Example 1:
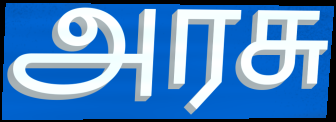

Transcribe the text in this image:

அரசு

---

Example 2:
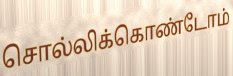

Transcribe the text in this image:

சொல்லிக்கொண்டோம்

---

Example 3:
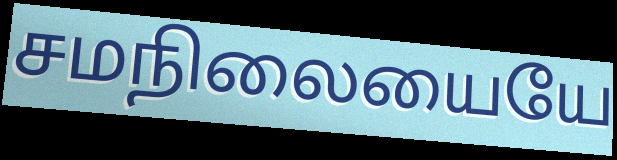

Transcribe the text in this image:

சமநிலையையே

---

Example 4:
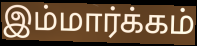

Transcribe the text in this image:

இம்மார்க்கம்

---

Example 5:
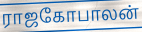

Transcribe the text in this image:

ராஜகோபாலன்